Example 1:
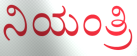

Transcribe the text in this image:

ನಿಯಂತ್ರಿ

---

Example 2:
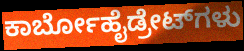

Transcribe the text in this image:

ಕಾರ್ಬೋಹೈಡ್ರೇಟ್‌ಗಳು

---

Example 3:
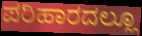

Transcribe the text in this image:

ಪರಿಹಾರದಲ್ಲೂ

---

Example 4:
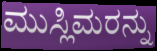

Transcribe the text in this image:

ಮುಸ್ಲಿಮರನ್ನು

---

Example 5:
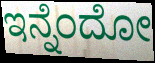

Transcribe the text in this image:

ಇನ್ನೆಂದೋ